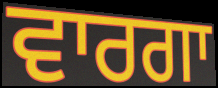
ਵਾਰਗਾ